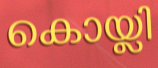
കൊയ്ലി